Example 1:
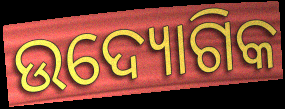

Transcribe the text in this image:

ଉଦ୍ୟୋଗିକ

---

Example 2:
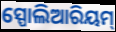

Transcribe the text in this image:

ସ୍ପୋଲିଆରିୟମ୍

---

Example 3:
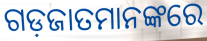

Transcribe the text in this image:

ଗଡ଼ଜାତମାନଙ୍କରେ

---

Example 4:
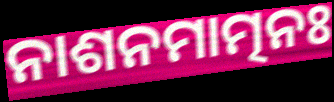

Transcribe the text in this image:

ନାଶନମାତ୍ମନଃ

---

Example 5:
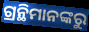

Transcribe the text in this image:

ଗ୍ରନ୍ଥିମାନଙ୍କରୁ